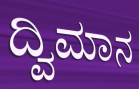
ದ್ವಿಮಾನ